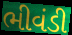
ભીવંડી